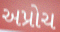
અપ્રોચ